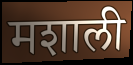
मशाली